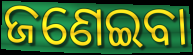
ଜଣେଇବା